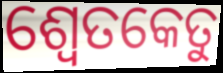
ଶ୍ୱେତକେତୁ